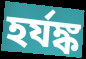
হর্যঙ্ক